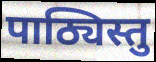
पाठ्यिस्तु